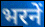
भरनें